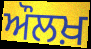
ਔਲਖ਼